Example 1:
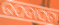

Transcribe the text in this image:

ଉପବାସଟା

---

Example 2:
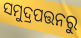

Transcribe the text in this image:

ସମୁଦ୍ରପତ୍ତନରୁ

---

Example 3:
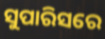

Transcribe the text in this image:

ସୁପାରିସରେ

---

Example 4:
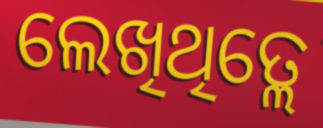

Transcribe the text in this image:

ଲେଖିଥିତ୍ଲେ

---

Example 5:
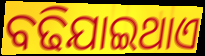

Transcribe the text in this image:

ବଢିଯାଇଥାଏ